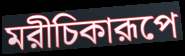
মরীচিকারূপে